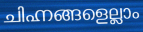
ചിഹ്നങ്ങളെല്ലാം